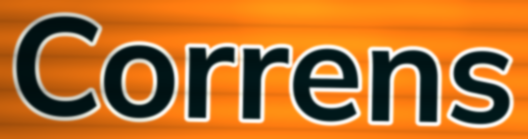
Correns